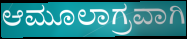
ಆಮೂಲಾಗ್ರವಾಗಿ